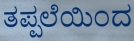
ತಪ್ಪಲೆಯಿಂದ